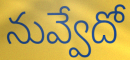
నువ్వేదో